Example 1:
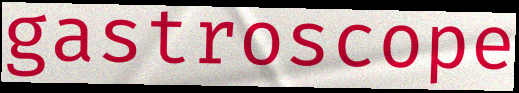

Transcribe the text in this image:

gastroscope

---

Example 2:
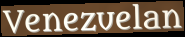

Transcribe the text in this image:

Venezuelan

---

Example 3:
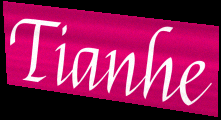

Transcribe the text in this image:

Tianhe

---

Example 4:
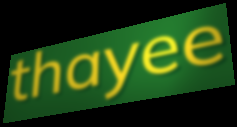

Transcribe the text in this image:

thayee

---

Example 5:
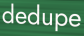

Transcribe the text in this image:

dedupe